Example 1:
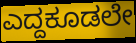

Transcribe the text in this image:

ಎದ್ದಕೂಡಲೇ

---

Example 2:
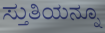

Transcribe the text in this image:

ಸ್ತುತಿಯನ್ನೂ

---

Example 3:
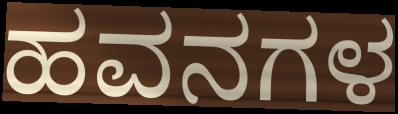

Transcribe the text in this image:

ಹವನಗಳ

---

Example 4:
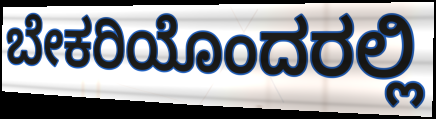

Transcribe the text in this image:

ಬೇಕರಿಯೊಂದರಲ್ಲಿ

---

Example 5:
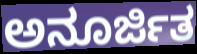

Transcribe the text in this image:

ಅನೂರ್ಜಿತ